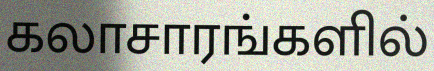
கலாசாரங்களில்